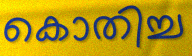
കൊതിച്ച